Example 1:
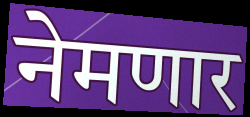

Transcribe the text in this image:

नेमणार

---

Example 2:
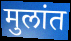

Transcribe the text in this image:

मुलांत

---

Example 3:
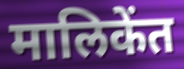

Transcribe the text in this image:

मालिकेंत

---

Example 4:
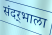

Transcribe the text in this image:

संदर्भाला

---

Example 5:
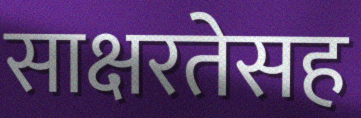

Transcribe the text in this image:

साक्षरतेसह